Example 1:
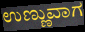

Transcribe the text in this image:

ಉಣ್ಣುವಾಗ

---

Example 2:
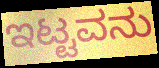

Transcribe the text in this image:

ಇಟ್ಟವನು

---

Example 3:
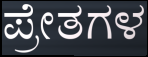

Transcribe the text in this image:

ಪ್ರೇತಗಳ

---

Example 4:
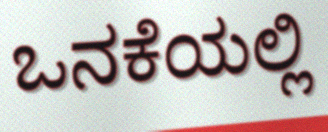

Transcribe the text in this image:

ಒನಕೆಯಲ್ಲಿ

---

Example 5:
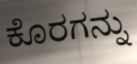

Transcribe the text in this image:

ಕೊರಗನ್ನು